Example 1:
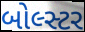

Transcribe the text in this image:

બોલ્સ્ટર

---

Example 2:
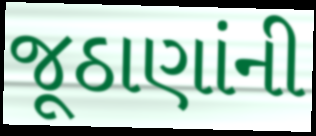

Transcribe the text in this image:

જૂઠાણાંની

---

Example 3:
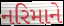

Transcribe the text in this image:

નરિમાને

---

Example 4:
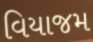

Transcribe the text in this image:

વિયાજમ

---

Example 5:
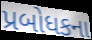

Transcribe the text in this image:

પ્રબોધકના